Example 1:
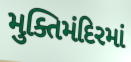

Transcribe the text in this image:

મુક્તિમંદિરમાં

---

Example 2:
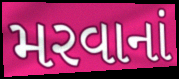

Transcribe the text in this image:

મરવાનાં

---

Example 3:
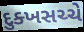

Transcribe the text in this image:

દુક્ખસચ્ચે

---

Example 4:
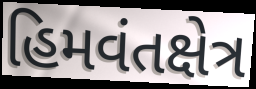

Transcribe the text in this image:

હિમવંતક્ષેત્ર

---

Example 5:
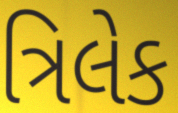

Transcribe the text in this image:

ત્રિલેક